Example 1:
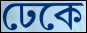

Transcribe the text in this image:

ঢেকে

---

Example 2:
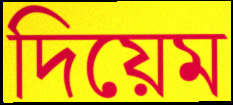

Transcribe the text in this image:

দিয়েম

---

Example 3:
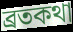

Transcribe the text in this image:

ব্রতকথা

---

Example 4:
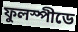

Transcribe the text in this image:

ফুলস্পীডে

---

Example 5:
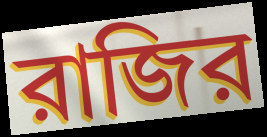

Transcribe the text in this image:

রাজির